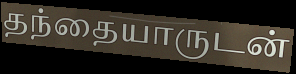
தந்தையாருடன்